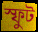
স্ফুট